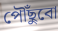
পৌঁছুবো